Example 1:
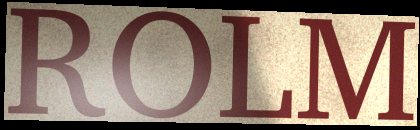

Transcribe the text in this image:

ROLM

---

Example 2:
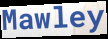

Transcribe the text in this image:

Mawley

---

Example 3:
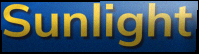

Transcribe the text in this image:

Sunlight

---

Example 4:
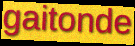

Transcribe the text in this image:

gaitonde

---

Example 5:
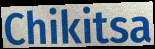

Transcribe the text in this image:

Chikitsa